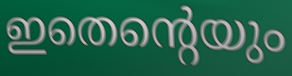
ഇതെന്റെയും